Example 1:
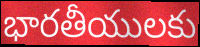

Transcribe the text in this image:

భారతీయులకు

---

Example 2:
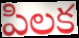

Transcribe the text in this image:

పిలక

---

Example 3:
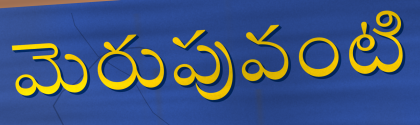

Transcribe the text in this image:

మెరుపువంటి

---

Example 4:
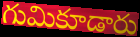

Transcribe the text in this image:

గుమికూడారు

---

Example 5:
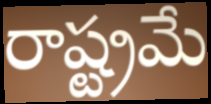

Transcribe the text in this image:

రాష్ట్రమే